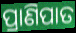
ପ୍ରାଣିପାତ